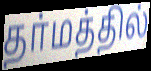
தர்மத்தில்